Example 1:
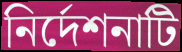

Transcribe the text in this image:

নির্দেশনাটি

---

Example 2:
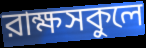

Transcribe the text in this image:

রাক্ষসকুলে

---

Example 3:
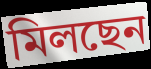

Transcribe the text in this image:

মিলছেন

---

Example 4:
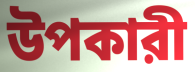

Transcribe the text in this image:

উপকারী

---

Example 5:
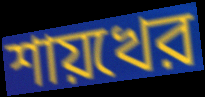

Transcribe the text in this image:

শায়খের